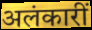
अलंकारीं